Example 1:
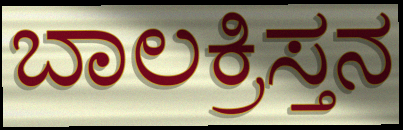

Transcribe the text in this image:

ಬಾಲಕ್ರಿಸ್ತನ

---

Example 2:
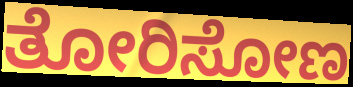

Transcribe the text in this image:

ತೋರಿಸೋಣ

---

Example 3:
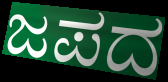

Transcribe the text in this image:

ಜಪದ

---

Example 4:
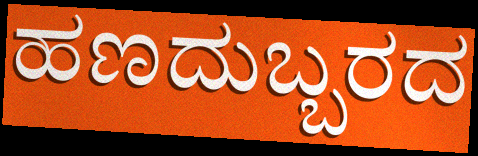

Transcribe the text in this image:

ಹಣದುಬ್ಬರದ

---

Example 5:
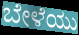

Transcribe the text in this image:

ಬೇಳೆಯು